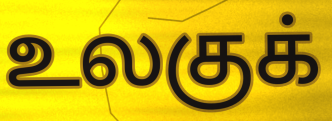
உலகுக்